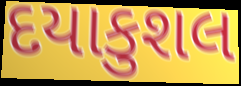
દયાકુશલ